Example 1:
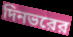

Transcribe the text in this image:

দিনভরের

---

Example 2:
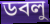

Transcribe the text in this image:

ডবলু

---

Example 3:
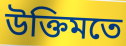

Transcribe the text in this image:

উক্তিমতে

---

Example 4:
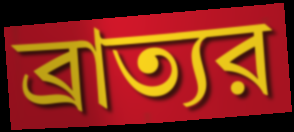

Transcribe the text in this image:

ব্রাত্যর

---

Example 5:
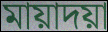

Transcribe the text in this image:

মায়াদয়া